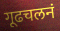
गूढचलनं